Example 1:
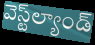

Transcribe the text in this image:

వెస్ట్‌ల్యాండ్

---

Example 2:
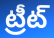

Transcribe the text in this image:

ట్రీట్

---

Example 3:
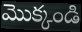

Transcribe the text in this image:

మొక్కండి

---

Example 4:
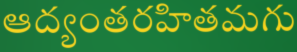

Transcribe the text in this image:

ఆద్యంతరహితమగు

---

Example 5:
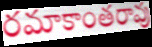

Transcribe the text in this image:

రమాకాంతరావు